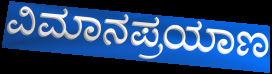
ವಿಮಾನಪ್ರಯಾಣ